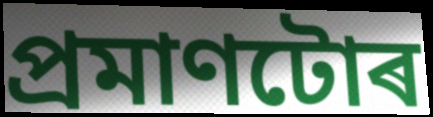
প্ৰমাণটোৰ